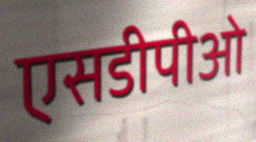
एसडीपीओ